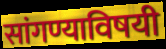
सांगण्याविषयी